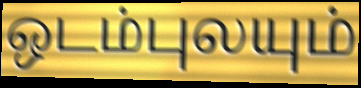
ஒடம்புலயும்